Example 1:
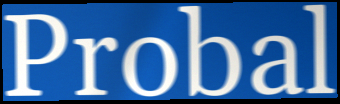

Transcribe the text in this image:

Probal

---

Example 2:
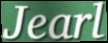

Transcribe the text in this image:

Jearl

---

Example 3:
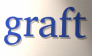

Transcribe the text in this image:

graft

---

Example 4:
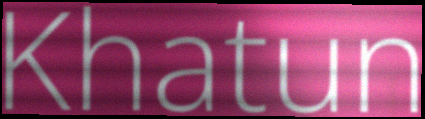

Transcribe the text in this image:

Khatun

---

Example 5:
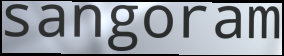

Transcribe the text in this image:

sangoram